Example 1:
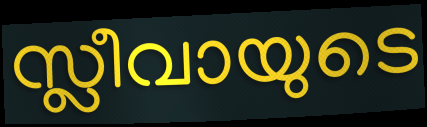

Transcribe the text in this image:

സ്ലീവായുടെ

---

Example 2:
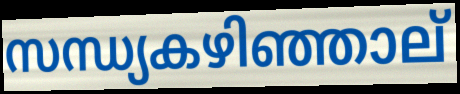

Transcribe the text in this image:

സന്ധ്യകഴിഞ്ഞാല്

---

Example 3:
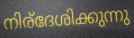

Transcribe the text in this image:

നിര്ദേശിക്കുന്നു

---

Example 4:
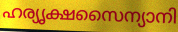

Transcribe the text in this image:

ഹര്യൃക്ഷസൈന്യാനി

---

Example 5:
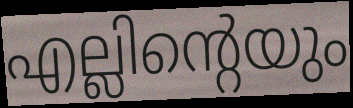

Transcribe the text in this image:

എല്ലിന്റെയും